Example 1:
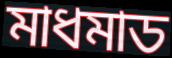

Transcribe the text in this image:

মাধমাড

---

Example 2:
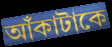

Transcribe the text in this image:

আঁকাটাকে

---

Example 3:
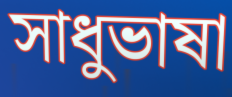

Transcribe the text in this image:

সাধুভাষা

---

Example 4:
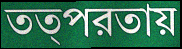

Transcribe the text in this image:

তত্পরতায়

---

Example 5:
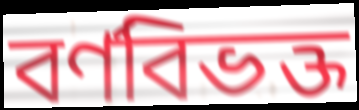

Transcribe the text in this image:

বর্ণবিভক্ত